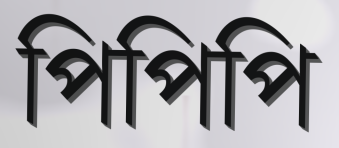
পিপিপি